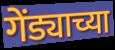
गेंड्याच्या